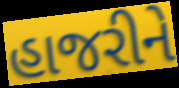
હાજરીને